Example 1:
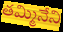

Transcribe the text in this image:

తమ్మినేని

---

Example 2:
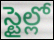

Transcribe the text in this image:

స్టైల్లో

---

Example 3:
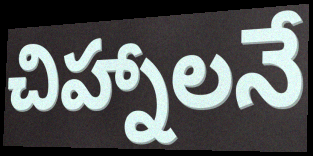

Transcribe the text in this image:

చిహ్నాలనే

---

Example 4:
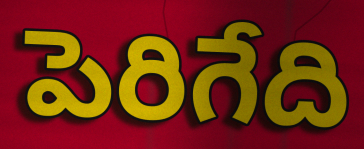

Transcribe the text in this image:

పెరిగేది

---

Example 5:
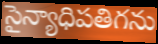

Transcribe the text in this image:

సైన్యాధిపతిగను